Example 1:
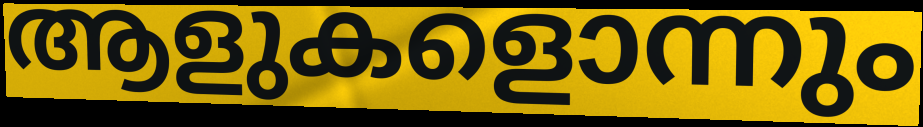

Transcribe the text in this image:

ആളുകളൊന്നും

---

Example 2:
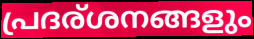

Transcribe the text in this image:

പ്രദര്ശനങ്ങളും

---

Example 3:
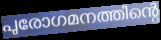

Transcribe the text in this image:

പുരോഗമനത്തിന്റെ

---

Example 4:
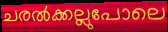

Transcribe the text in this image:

ചരൽക്കല്ലുപോലെ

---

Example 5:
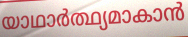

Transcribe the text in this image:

യാഥാർത്ഥ്യമാകാൻ